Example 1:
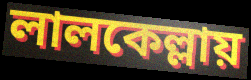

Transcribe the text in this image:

লালকেল্লায়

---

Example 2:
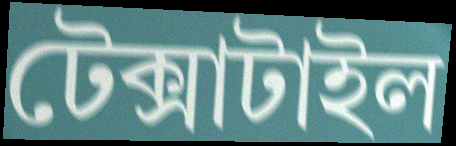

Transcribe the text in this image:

টেক্সাটাইল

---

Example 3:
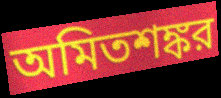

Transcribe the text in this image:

অমিতশঙ্কর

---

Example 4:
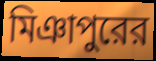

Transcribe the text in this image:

মিঞাপুরের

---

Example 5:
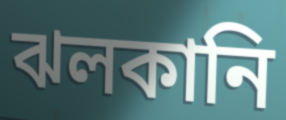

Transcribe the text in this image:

ঝলকানি